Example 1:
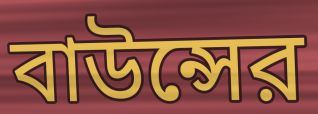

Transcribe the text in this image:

বাউন্সের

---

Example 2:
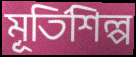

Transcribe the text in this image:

মূর্তিশিল্প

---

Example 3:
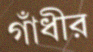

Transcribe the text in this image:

গাঁধীর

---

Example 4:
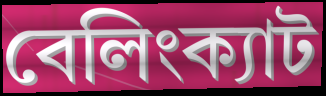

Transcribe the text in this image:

বেলিংক্যাট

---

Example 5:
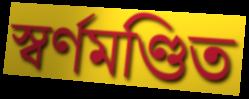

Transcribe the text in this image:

স্বর্ণমণ্ডিত